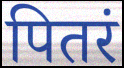
पितरं